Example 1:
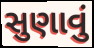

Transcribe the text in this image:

સુણાવું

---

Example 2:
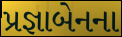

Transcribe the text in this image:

પ્રજ્ઞાબેનના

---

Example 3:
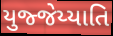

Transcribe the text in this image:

યુજ્જેય્યાતિ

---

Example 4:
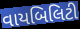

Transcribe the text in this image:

વાયબિલિટી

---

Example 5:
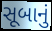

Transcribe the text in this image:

સૂબાનું